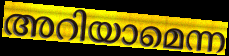
അറിയാമെന്ന